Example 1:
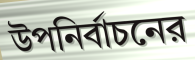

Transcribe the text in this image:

উপনির্বাচনের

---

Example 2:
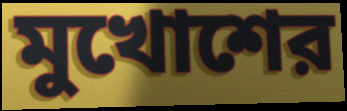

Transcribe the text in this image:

মুখোশের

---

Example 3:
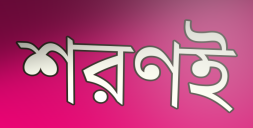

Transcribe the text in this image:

শরণই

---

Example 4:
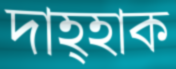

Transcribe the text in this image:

দাহ্হাক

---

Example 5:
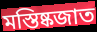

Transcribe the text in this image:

মস্তিষ্কজাত